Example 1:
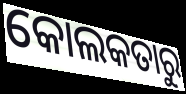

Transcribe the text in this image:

କୋଲକତାରୁ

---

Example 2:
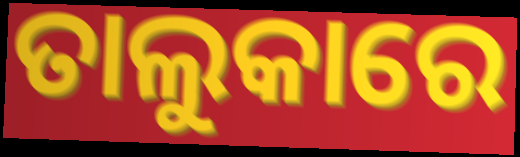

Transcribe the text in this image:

ତାଲୁକାରେ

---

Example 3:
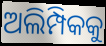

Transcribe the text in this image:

ଅଲିମ୍ପିକକୁ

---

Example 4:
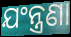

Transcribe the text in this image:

ଯଂନ୍ତ୍ରଣା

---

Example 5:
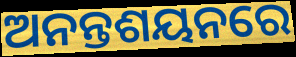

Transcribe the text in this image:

ଅନନ୍ତଶୟନରେ